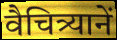
वैचित्र्यानें